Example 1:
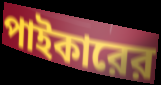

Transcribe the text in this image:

পাইকারের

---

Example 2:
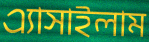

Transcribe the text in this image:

এ্যাসাইলাম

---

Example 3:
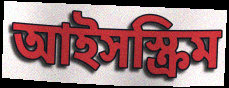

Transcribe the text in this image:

আইসস্ক্রিম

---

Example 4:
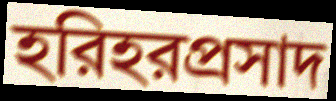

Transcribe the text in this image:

হরিহরপ্রসাদ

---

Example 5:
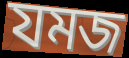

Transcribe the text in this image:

যমজ